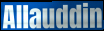
Allauddin